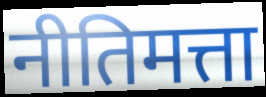
नीतिमत्ता